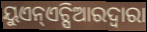
ୟୁଏନ୍ଏଚ୍ସିଆରଦ୍ୱାରା